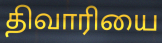
திவாரியை